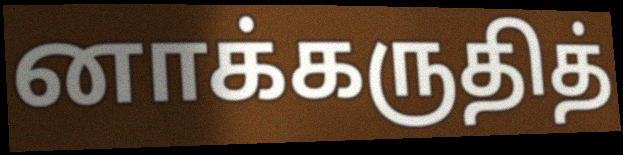
னாக்கருதித்